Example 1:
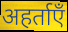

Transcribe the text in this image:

अहर्ताएँ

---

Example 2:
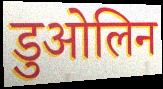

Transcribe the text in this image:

डुओलिन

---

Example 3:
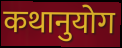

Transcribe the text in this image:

कथानुयोग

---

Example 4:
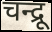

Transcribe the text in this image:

चन्द्रू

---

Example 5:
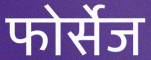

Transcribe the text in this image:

फोर्सेज